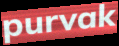
purvak